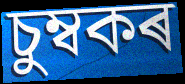
চুম্বকৰ